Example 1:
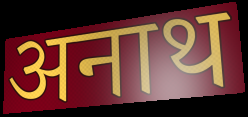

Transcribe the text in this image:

अनाथ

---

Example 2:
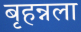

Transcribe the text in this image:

बृहन्नला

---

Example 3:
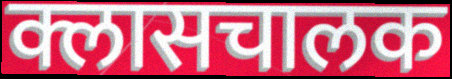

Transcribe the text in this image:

क्‍लासचालक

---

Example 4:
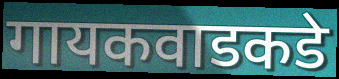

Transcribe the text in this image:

गायकवाडकडे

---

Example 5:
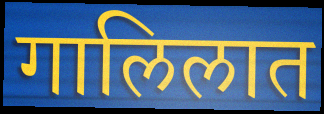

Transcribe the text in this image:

गालिलात